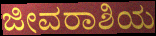
ಜೀವರಾಶಿಯ